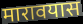
मारावयास